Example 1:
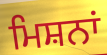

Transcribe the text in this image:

ਮਿਸ਼ਨਾਂ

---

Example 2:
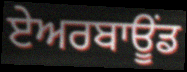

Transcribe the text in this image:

ਏਅਰਬਾਊਂਡ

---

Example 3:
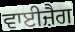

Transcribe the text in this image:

ਵਾਈਜ਼ੈਗ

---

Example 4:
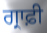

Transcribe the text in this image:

ਗ੍ਰਾਫ਼ੀ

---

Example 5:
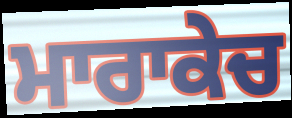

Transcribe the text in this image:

ਮਾਰਾਕੇਚ